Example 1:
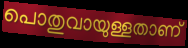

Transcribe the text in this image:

പൊതുവായുള്ളതാണ്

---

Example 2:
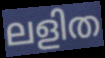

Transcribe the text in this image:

ലളിത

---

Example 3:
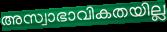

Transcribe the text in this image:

അസ്വാഭാവികതയില്ല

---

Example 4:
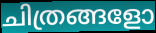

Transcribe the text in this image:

ചിത്രങ്ങളോ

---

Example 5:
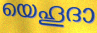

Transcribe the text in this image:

യെഹൂദാ